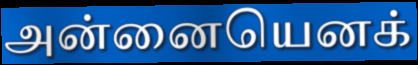
அன்னையெனக்